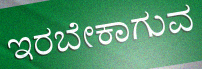
ಇರಬೇಕಾಗುವ